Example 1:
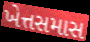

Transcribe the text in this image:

ખેત્તસમાસ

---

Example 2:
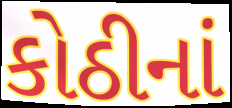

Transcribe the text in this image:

કોઠીનાં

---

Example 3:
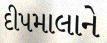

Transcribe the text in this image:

દીપમાલાને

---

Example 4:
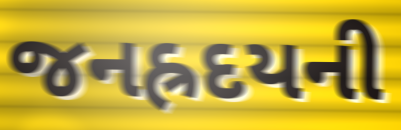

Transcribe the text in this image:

જનહ્રદયની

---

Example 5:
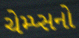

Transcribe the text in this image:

ચેમ્પ્સનો